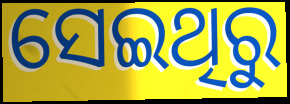
ସେଇଥିରୁ